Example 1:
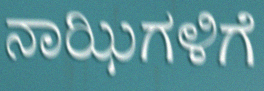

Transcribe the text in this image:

ನಾಝಿಗಳಿಗೆ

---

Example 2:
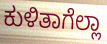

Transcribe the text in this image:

ಕುಳಿತಾಗೆಲ್ಲಾ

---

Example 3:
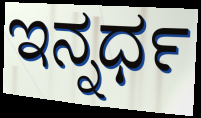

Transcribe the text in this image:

ಇನ್ನರ್ಧ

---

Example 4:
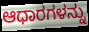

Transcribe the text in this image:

ಆಧಾರಗಳನ್ನು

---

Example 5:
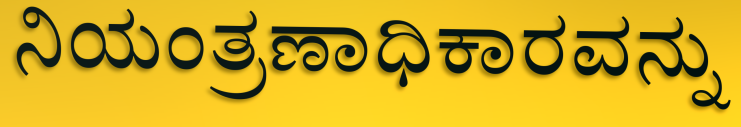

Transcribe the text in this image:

ನಿಯಂತ್ರಣಾಧಿಕಾರವನ್ನು